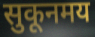
सुकूनमय